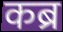
कब्र